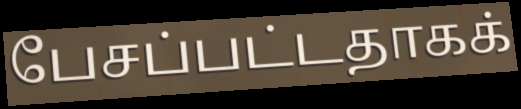
பேசப்பட்டதாகக்